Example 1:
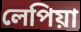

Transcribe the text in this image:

লেপিয়া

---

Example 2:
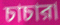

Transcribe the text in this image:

চাচারা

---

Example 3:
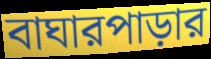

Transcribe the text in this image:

বাঘারপাড়ার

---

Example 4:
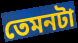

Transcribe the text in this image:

তেমনটা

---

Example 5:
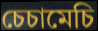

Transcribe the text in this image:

চেচামেচি